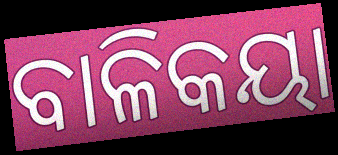
ବାଳିକୟା